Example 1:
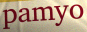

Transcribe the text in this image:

pamyo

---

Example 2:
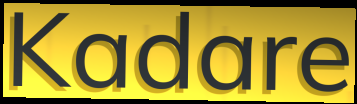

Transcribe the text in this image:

Kadare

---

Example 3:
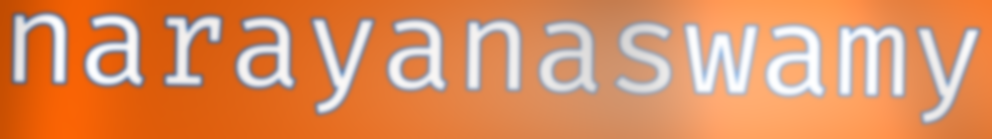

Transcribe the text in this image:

narayanaswamy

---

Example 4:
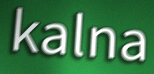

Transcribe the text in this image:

kalna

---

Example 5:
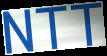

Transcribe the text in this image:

NTT